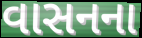
વાસનના